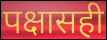
पक्षासही